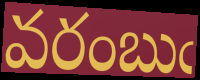
వరంబుఁ